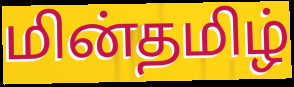
மின்தமிழ்